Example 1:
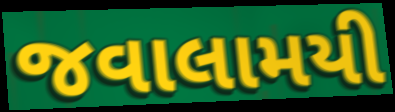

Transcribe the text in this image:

જવાલામયી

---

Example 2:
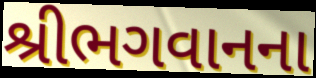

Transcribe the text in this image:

શ્રીભગવાનના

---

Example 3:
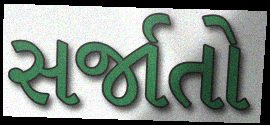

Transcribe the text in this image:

સર્જાતો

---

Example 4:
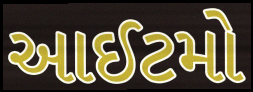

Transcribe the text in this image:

આઈટમો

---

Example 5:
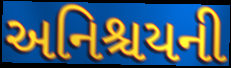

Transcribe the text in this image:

અનિશ્ચયની